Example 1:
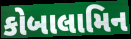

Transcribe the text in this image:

કોબાલામિન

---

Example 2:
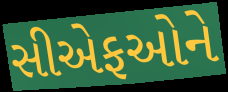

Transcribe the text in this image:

સીએફઓને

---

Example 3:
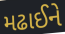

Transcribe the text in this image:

મઢાઈને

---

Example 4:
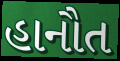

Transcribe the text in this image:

હાનૌત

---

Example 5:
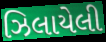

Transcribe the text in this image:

ઝિલાયેલી